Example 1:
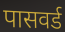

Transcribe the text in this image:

पासवर्ड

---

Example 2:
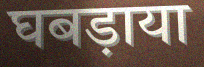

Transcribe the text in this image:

घबड़ाया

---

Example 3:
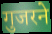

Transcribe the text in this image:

गुजरने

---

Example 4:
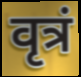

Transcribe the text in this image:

वृत्रं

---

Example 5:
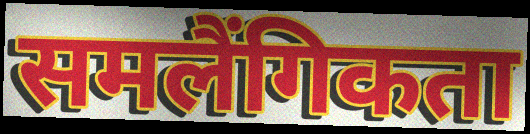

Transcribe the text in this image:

समलैंगिकता